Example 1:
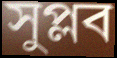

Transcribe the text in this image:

সুপ্লব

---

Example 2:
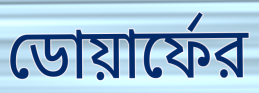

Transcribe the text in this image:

ডোয়ার্ফের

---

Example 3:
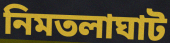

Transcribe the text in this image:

নিমতলাঘাট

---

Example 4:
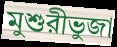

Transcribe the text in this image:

মুশুরীভুজা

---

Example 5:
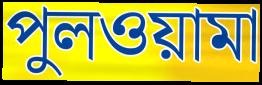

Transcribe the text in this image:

পুলওয়ামা